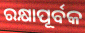
ରକ୍ଷାପୂର୍ବକ